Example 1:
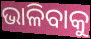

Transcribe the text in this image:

ଭାଳିବାକୁ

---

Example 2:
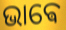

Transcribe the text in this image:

ଭାଵେ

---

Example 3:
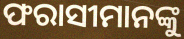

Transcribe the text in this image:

ଫରାସୀମାନଙ୍କୁ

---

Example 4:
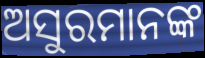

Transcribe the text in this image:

ଅସୁରମାନଙ୍କ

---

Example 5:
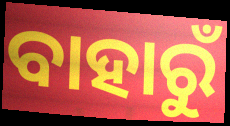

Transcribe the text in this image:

ବାହାରୁଁ